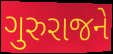
ગુરુરાજને